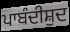
ਪਾਬੰਦੀਸ਼ੁਦ